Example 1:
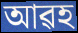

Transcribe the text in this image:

আৱহ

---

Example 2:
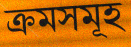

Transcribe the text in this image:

ক্ৰমসমূহ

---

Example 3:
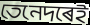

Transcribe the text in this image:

তেনেদৰেই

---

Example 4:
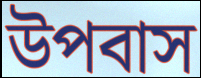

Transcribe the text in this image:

উপবাস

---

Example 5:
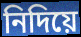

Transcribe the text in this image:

নিদিয়ে